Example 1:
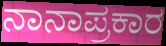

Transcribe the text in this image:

ನಾನಾಪ್ರಕಾರ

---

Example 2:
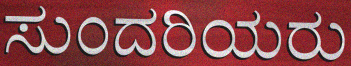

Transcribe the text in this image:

ಸುಂದರಿಯರು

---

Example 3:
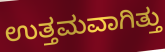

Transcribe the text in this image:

ಉತ್ತಮವಾಗಿತ್ತು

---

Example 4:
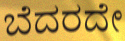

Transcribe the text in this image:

ಬೆದರದೇ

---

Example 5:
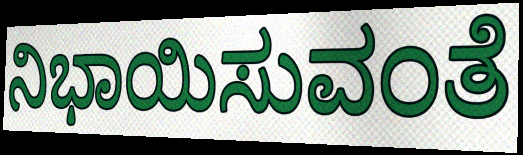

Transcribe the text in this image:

ನಿಭಾಯಿಸುವಂತೆ